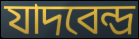
যাদবেন্দ্র